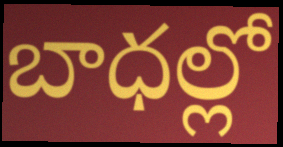
బాధల్లో